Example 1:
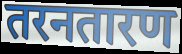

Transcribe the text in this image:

तरनतारण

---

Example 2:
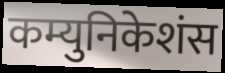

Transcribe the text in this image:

कम्‍युनिकेशंस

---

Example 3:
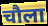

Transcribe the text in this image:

चौला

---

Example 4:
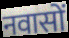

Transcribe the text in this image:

नवासों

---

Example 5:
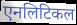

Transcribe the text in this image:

एनलिटिकल